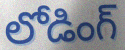
లోడింగ్